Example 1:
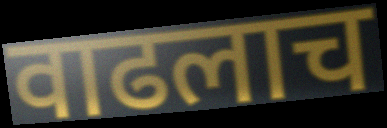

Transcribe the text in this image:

वाढलाच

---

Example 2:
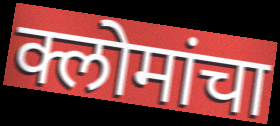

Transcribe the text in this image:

क्लोमांचा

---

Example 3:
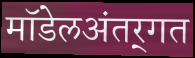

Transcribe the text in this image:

मॉडेलअंतर्गत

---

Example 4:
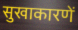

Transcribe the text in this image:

सुखाकारणें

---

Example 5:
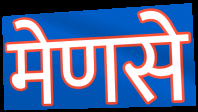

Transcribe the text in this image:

मेणसे